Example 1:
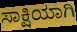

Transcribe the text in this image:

ಸಾಕ್ಷಿಯಾಗಿ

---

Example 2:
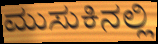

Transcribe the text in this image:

ಮುಸುಕಿನಲ್ಲಿ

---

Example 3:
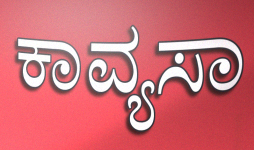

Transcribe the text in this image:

ಕಾವ್ಯಸಾ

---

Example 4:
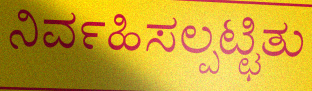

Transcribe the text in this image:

ನಿರ್ವಹಿಸಲ್ಪಟ್ಟಿತು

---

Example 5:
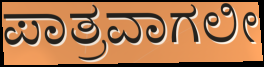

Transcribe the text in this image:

ಪಾತ್ರವಾಗಲೀ